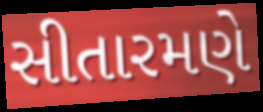
સીતારમણે